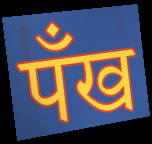
पँख